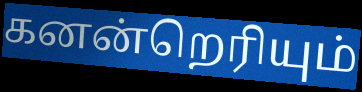
கனன்றெரியும்